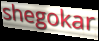
shegokar